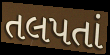
તલપતાં